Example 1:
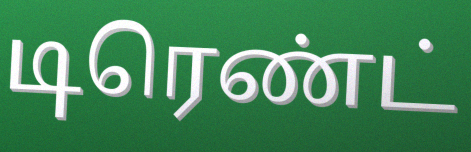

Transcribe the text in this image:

டிரெண்ட்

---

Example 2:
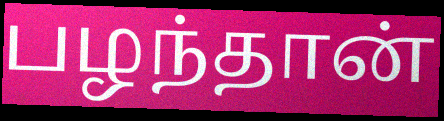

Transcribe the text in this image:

பழந்தான்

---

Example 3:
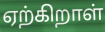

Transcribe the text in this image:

ஏற்கிறாள்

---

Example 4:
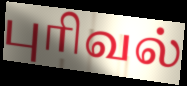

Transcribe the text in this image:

புரிவல்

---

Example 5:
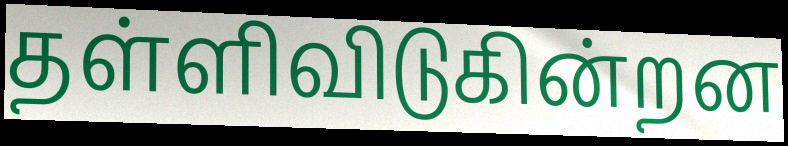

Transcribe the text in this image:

தள்ளிவிடுகின்றன